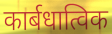
कार्बधात्विक